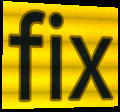
fix